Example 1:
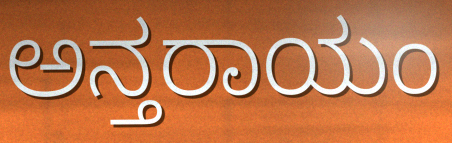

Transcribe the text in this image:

ಅನ್ತರಾಯಂ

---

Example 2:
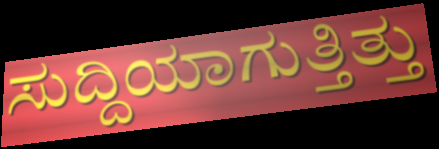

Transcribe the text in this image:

ಸುದ್ದಿಯಾಗುತ್ತಿತ್ತು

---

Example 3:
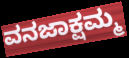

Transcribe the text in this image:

ವನಜಾಕ್ಷಮ್ಮ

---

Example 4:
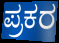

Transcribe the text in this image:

ಪ್ರಕರ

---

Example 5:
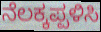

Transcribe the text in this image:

ನೆಲಕ್ಕಪ್ಪಳಿಸಿ